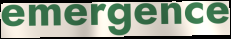
emergence